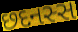
છદનસ્સ